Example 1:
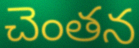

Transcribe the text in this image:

చెంతన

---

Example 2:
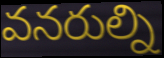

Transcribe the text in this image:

వనరుల్ని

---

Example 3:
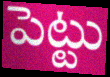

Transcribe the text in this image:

పెట్టు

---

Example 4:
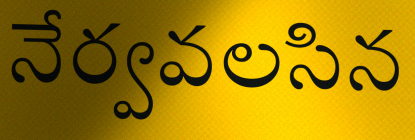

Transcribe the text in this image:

నేర్వవలసిన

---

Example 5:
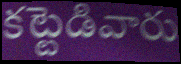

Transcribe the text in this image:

కట్టెడివారు